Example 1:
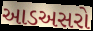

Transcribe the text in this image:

આડઅસરો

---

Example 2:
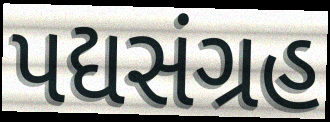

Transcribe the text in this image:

પદ્યસંગ્રહ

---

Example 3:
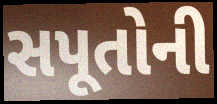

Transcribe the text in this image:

સપૂતોની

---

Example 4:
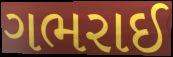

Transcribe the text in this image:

ગભરાઈ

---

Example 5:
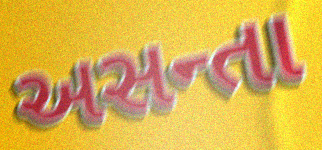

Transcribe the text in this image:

અસન્તા